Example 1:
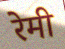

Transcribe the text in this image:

रेमी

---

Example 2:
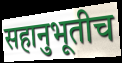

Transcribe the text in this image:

सहानुभूतीच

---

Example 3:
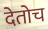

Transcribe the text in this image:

देतोच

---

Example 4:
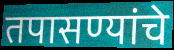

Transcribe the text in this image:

तपासण्यांचे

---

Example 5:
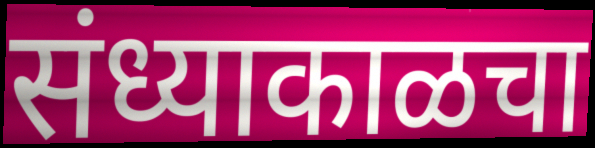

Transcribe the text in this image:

संध्याकाळचा